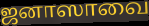
ஜனாஸாவை